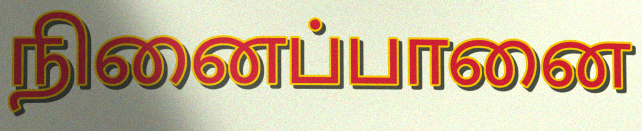
நினைப்பானை